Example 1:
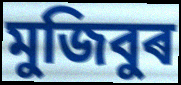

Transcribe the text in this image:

মুজিবুৰ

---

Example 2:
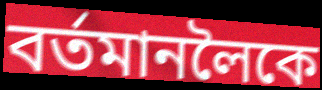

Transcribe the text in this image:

বৰ্তমানলৈকে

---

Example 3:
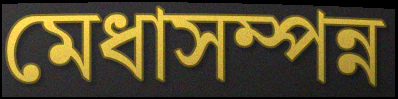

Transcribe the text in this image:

মেধাসম্পন্ন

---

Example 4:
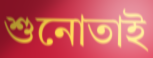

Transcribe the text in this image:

শুনোতাই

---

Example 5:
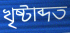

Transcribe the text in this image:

খৃষ্টাব্দত